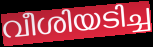
വീശിയടിച്ച